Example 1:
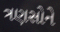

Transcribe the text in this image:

ત્રણસોને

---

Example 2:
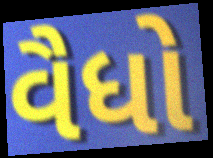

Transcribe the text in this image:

વૈધો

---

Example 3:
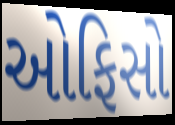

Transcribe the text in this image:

ઓફિસો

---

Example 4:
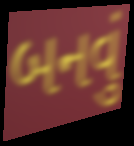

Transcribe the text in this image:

બનવું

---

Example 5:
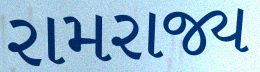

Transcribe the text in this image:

રામરાજ્ય